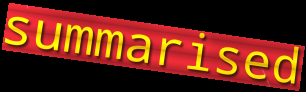
summarised